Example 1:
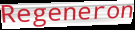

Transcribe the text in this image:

Regeneron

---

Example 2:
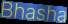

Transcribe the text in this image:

Bhasha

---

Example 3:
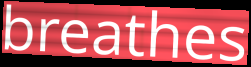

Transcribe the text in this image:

breathes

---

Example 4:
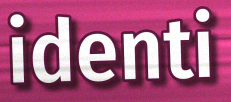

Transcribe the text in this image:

identi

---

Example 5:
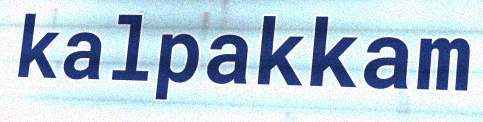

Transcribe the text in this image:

kalpakkam